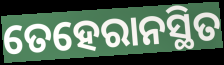
ତେହେରାନସ୍ଥିତ